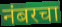
नंबरचा